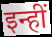
इन्‍हीं